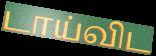
டாய்விட